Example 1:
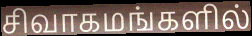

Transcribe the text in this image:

சிவாகமங்களில்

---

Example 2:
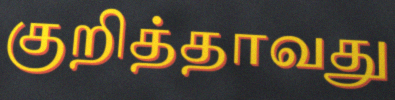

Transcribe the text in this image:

குறித்தாவது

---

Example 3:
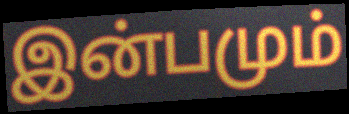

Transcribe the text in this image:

இன்பமும்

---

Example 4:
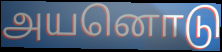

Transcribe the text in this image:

அயனொடு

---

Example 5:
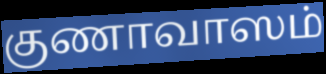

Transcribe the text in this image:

குணாவாஸம்